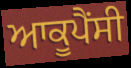
ਆਕੂਪੈਂਸੀ